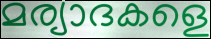
മര്യാദകളെ